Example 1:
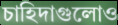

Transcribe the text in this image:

চাহিদাগুলোও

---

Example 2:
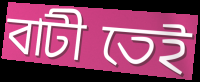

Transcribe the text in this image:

বাটীতেই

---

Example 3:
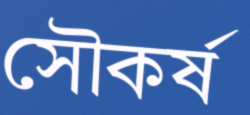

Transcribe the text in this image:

সৌকর্ষ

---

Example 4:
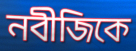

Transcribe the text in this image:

নবীজিকে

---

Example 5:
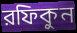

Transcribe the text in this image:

রফিকুন